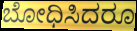
ಬೋಧಿಸಿದರೂ